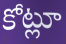
కోట్లూ